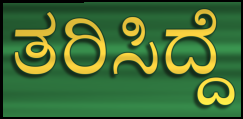
ತರಿಸಿದ್ದೆ